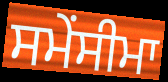
ਸਮੇਂਸੀਮਾ